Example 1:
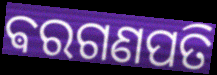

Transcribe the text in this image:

ଵରଗଣପତି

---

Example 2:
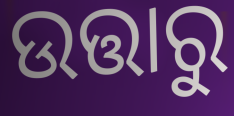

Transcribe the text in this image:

ଉତ୍ତାରୁ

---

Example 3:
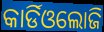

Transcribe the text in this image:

କାର୍ଡିଓଲୋଜି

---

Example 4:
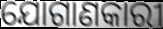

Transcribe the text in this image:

ଯୋଗାଣକାରୀ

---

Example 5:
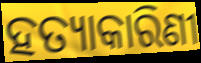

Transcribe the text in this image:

ହତ୍ୟାକାରିଣୀ